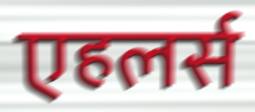
एहलर्स